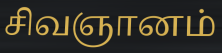
சிவஞானம்